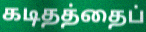
கடிதத்தைப்